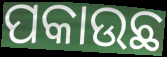
ପକାଉଛ